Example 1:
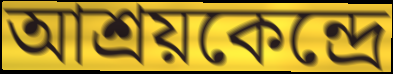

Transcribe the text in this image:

আশ্রয়কেন্দ্রে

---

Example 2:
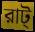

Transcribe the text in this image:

রাট্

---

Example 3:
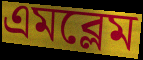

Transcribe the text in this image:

এমব্লেম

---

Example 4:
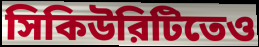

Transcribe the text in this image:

সিকিউরিটিতেও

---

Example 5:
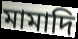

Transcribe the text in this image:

মামাদি